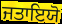
ਜਤਾਇਯੋ